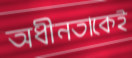
অধীনতাকেই